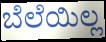
ಬೆಲೆಯಿಲ್ಲ